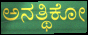
ಅನತ್ಥಿಕೋ